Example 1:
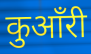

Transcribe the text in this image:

कुआँरी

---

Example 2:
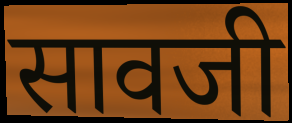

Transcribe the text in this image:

सावजी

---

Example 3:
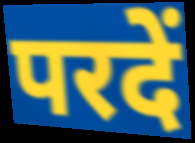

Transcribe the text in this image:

परदें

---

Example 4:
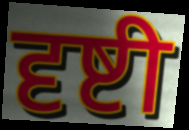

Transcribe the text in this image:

दृष्टी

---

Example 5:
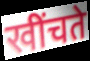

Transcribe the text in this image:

खींचते